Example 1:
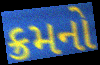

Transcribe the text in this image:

ક્રમનો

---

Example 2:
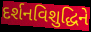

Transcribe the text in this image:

દર્શનવિશુદ્ધિને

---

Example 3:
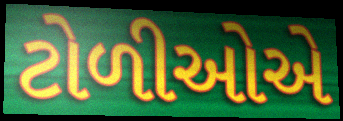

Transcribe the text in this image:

ટોળીઓએ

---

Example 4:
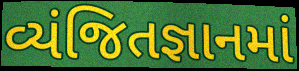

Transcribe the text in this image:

વ્યંજિતજ્ઞાનમાં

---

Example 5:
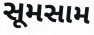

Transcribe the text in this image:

સૂમસામ